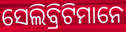
ସେଲିବ୍ରିଟିମାନେ